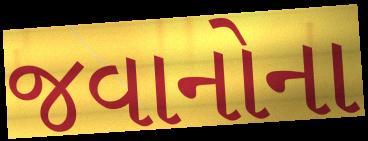
જવાનોના